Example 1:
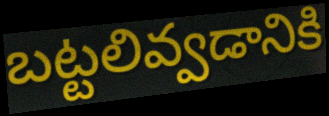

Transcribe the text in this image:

బట్టలివ్వడానికి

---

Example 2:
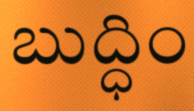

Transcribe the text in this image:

బుద్ధిం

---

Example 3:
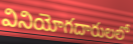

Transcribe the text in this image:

వినియోగదారులలో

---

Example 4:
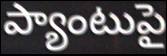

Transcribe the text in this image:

ప్యాంటుపై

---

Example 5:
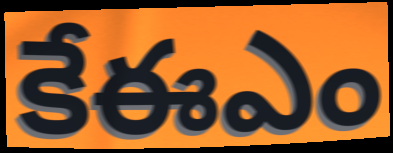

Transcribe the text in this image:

కేఈఎం